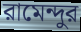
রামেন্দুর